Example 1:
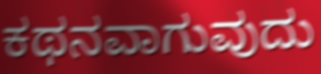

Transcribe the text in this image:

ಕಥನವಾಗುವುದು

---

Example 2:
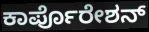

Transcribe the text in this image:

ಕಾರ್ಪೊರೇಶನ್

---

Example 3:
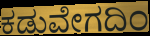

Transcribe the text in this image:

ಕಡುವೇಗದಿಂ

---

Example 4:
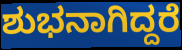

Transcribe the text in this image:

ಶುಭನಾಗಿದ್ದರೆ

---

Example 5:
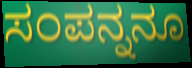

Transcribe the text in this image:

ಸಂಪನ್ನನೂ